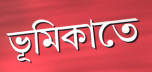
ভূমিকাতে